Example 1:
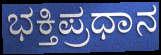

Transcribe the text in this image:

ಭಕ್ತಿಪ್ರಧಾನ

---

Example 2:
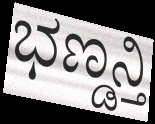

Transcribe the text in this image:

ಭಣ್ಡನ್ತಿ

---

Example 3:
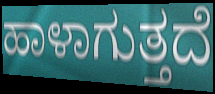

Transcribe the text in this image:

ಹಾಳಾಗುತ್ತದೆ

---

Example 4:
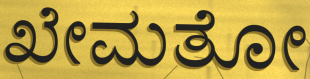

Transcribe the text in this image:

ಖೇಮತೋ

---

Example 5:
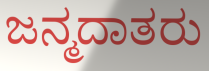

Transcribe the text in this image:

ಜನ್ಮದಾತರು